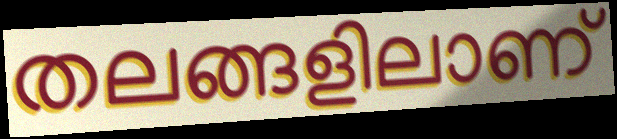
തലങ്ങളിലാണ്